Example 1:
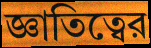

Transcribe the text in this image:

জ্ঞাতিত্বের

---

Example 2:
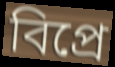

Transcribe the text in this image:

বিপ্রে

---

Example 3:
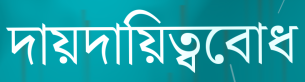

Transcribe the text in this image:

দায়দায়িত্ববোধ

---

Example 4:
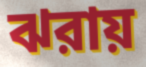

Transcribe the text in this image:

ঝরায়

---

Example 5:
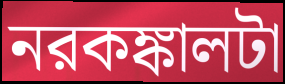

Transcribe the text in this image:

নরকঙ্কালটা